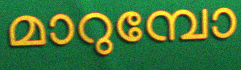
മാറുമ്പോ